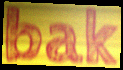
bak